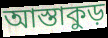
আস্তাকুড়